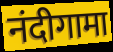
नंदीगामा